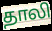
தாலி